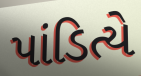
પાંડિત્યે